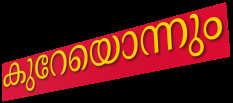
കുറേയൊന്നും